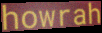
howrah